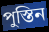
পুস্তিন